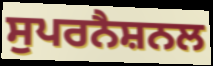
ਸੁਪਰਨੈਸ਼ਨਲ